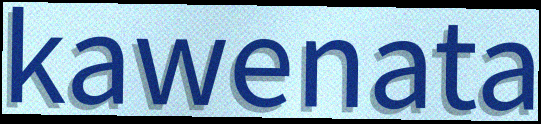
kawenata